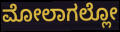
ಮೋಲಾಗಲ್ಲೋ